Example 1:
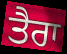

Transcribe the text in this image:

ਤੈਰਾ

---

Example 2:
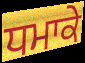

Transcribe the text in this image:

ਧਮਾਕੇ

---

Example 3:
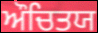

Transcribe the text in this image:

ਔਚਿਤਯ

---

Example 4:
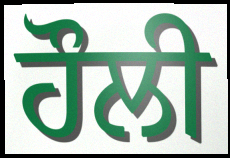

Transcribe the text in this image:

ਹੌਲੀ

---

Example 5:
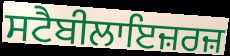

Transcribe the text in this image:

ਸਟੈਬੀਲਾਇਜ਼ਰਜ਼